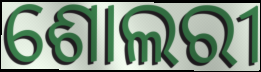
ଶୋଲରୀ